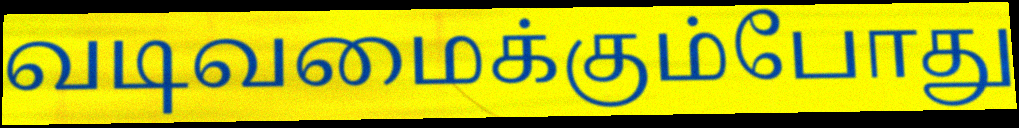
வடிவமைக்கும்போது